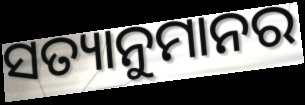
ସତ୍ୟାନୁମାନର